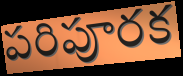
పరిపూరక